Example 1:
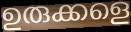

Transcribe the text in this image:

ഉരുക്കളെ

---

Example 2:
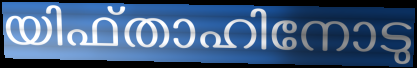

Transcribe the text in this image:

യിഫ്താഹിനോടു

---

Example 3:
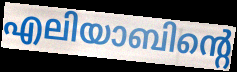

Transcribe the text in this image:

എലിയാബിന്റെ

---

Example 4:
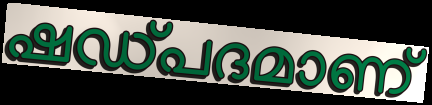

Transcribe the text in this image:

ഷഡ്പദമാണ്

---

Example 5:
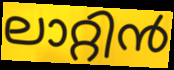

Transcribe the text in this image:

ലാറ്റിൻ